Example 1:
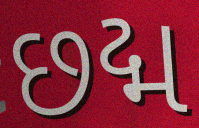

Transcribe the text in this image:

છદ્મ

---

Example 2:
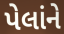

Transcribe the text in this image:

પેલાંને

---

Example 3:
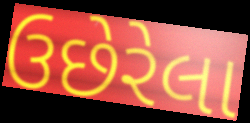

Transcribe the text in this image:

ઉછેરેલા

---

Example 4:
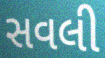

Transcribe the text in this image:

સવલી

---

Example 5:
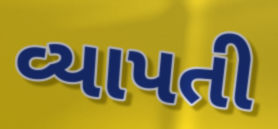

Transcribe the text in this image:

વ્યાપતી